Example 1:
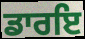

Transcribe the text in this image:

ਡਾਰਇ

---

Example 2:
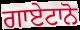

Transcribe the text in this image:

ਗਾਏਟਾਨੋ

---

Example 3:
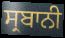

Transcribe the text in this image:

ਸ੍ਰਬਾਨੀ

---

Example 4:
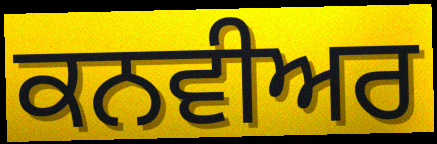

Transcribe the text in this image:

ਕਨਵੀਅਰ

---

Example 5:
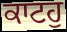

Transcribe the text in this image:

ਕਾਟਹੁ